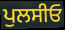
ਪੁਲਸੀਓ